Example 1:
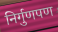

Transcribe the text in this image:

निर्गुणपण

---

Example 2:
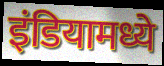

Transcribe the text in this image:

इंडियामध्ये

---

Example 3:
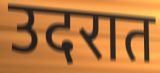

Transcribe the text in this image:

उदरात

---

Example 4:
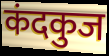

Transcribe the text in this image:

कंदकुज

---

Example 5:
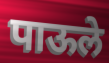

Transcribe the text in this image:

पाऊले